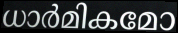
ധാർമികമോ